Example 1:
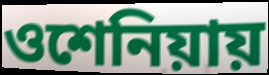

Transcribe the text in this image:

ওশেনিয়ায়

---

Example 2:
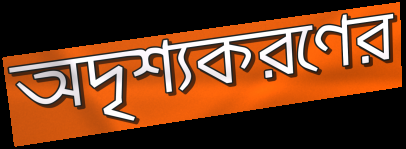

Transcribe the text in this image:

অদৃশ্যকরণের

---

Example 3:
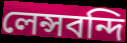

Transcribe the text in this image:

লেন্সবন্দি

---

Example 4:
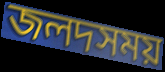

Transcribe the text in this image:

জলদসময়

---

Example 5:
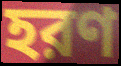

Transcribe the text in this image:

হরণ